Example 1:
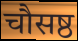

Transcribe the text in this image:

चौसष्ठ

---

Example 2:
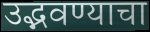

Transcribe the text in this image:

उद्भवण्याचा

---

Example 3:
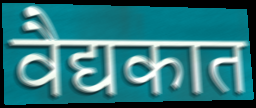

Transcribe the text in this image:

वैद्यकात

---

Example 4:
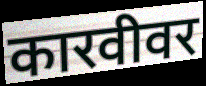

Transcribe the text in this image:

कारवीवर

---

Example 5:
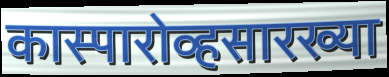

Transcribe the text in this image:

कास्पारोव्हसारख्या